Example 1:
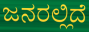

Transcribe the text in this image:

ಜನರಲ್ಲಿದೆ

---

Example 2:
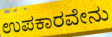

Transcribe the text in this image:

ಉಪಕಾರವೇನು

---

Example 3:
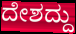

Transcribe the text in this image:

ದೇಶದ್ದು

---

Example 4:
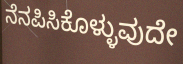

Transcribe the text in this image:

ನೆನಪಿಸಿಕೊಳ್ಳುವುದೇ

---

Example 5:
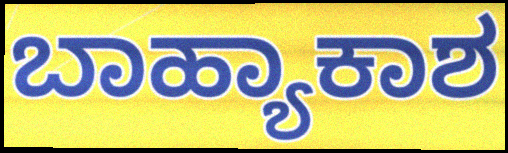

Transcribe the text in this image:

ಬಾಹ್ಯಾಕಾಶ